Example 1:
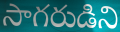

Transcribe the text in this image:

సాగరుడిని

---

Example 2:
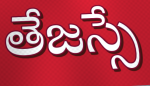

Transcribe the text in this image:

తేజస్సే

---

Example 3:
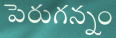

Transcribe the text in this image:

పెరుగన్నం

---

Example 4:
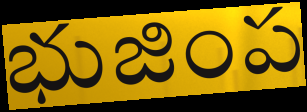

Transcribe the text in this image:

భుజింప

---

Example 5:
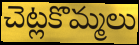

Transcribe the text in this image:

చెట్లకొమ్మలు